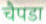
चैपडा